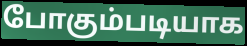
போகும்படியாக